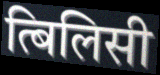
त्बिलिसी